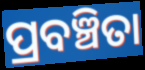
ପ୍ରବଞ୍ଚିତା